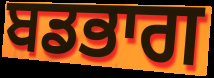
ਬਡਭਾਗ